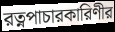
রত্নপাচারকারিণীর